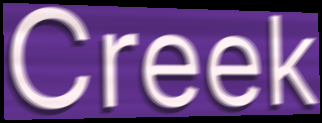
Creek